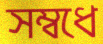
সম্বধে